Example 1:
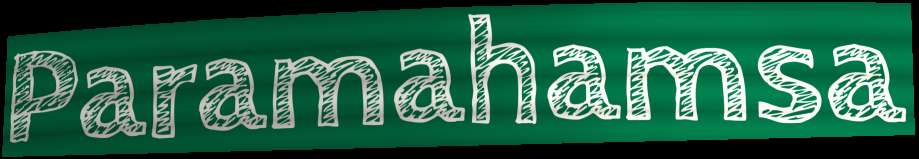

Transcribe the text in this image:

Paramahamsa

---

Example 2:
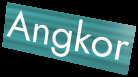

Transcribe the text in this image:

Angkor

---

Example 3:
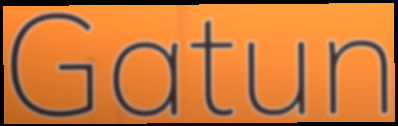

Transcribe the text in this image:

Gatun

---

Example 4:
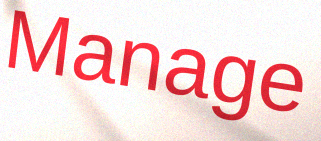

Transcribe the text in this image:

Manage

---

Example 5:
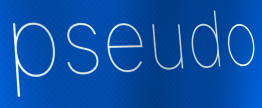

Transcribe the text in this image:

pseudo